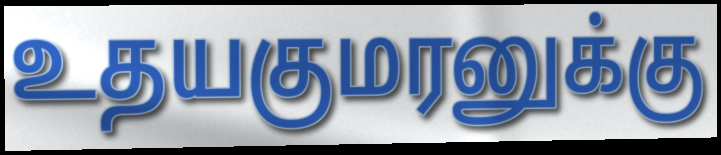
உதயகுமரனுக்கு